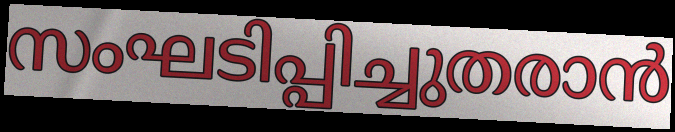
സംഘടിപ്പിച്ചുതരാൻ